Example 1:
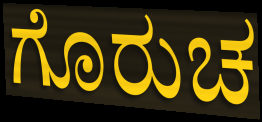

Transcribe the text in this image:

ಗೊರುಚ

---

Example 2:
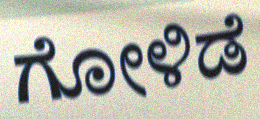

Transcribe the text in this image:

ಗೋಳಿಡೆ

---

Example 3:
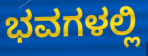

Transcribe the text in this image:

ಭವಗಳಲ್ಲಿ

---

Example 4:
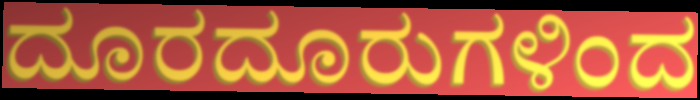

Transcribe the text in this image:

ದೂರದೂರುಗಳಿಂದ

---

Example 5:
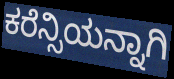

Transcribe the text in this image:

ಕರೆನ್ಸಿಯನ್ನಾಗಿ